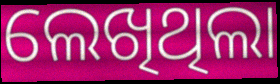
ଲେଖିଥିଲା